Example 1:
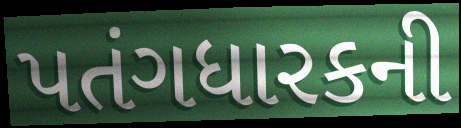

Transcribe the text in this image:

પતંગધારકની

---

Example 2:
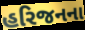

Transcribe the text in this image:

હરિજનના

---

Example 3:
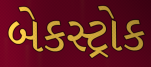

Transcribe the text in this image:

બેકસ્ટ્રોક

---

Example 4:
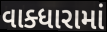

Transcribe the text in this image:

વાક્ધારામાં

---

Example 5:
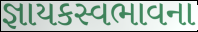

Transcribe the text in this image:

જ્ઞાયકસ્વભાવના